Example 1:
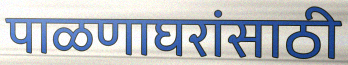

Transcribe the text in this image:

पाळणाघरांसाठी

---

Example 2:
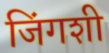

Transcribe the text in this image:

जिंगशी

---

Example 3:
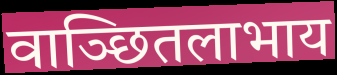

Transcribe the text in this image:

वाञ्छितलाभाय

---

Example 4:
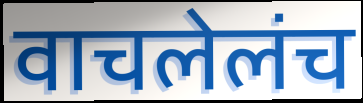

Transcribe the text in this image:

वाचलेलंच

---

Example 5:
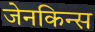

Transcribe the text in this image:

जेनकिन्स